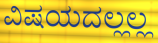
ವಿಷಯದಲ್ಲಲ್ಲ